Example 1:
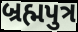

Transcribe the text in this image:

બ્રહ્મપુત્ર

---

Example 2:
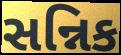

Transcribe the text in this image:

સન્નિક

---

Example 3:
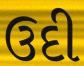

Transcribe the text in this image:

ઉદી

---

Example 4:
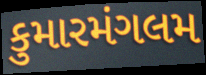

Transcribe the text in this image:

કુમારમંગલમ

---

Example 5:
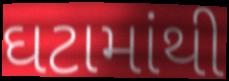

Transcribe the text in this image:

ઘટામાંથી